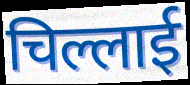
चिल्लाई